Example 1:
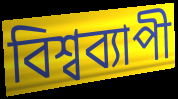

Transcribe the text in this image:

বিশ্বব্যাপী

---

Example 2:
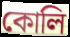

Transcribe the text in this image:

কোলি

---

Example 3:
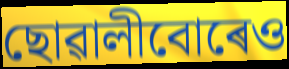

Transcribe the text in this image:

ছোৱালীবোৰেও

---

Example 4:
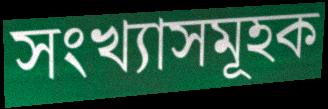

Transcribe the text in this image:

সংখ্যাসমূহক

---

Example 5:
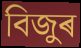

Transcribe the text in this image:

বিজুৰ